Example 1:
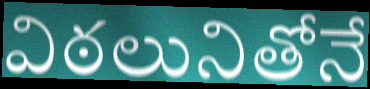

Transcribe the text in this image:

విఠలునితోనే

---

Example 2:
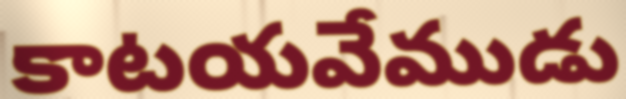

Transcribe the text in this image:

కాటయవేముడు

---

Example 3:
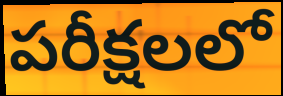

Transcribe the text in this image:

పరీక్షలలో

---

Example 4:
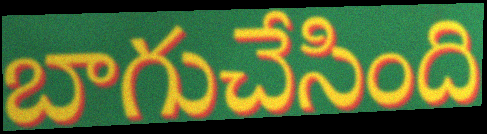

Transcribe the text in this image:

బాగుచేసింది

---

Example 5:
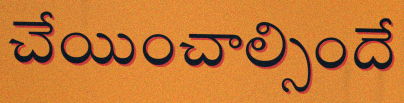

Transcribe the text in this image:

చేయించాల్సిందే